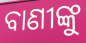
ବାଣୀଙ୍କୁ